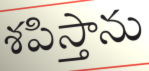
శపిస్తాను